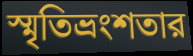
স্মৃতিভ্রংশতার